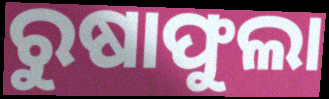
ରୁଷାଫୁଲା